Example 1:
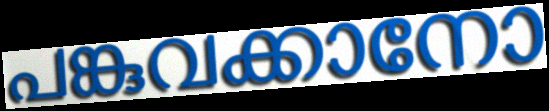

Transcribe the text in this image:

പങ്കുവക്കാനോ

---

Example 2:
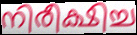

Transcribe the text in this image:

നിരീക്ഷിച്ച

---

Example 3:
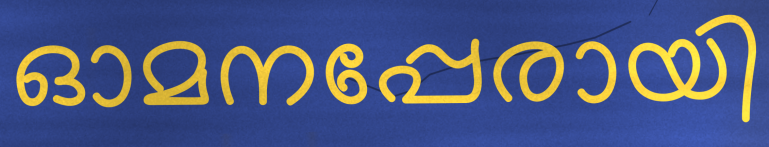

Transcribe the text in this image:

ഓമനപ്പേരായി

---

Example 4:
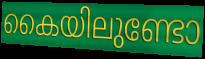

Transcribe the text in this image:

കൈയിലുണ്ടോ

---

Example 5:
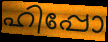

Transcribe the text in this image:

ഹിപ്പോ